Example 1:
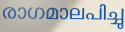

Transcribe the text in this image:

രാഗമാലപിച്ചു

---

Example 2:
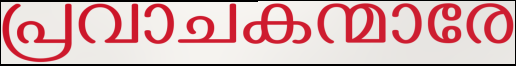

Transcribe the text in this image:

പ്രവാചകന്മാരേ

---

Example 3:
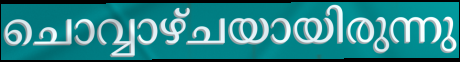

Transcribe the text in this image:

ചൊവ്വാഴ്ചയായിരുന്നു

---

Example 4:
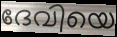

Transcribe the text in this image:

ദേവിയെ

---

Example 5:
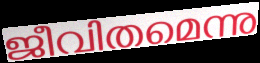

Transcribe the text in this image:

ജീവിതമെന്നു